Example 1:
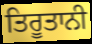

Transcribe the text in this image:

ਤਿਰੂਤਾਨੀ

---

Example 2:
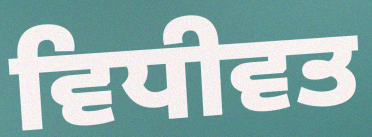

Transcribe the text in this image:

ਵਿਧੀਵਤ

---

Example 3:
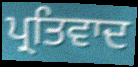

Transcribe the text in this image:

ਪ੍ਰਤਿਵਾਦ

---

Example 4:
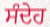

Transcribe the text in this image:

ਸੰਦੇਹ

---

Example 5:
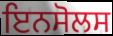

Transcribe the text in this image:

ਇਨਸੋਲਸ